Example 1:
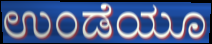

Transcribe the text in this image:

ಉಂಡೆಯೂ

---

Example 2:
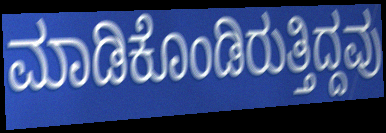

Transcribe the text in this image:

ಮಾಡಿಕೊಂಡಿರುತ್ತಿದ್ದವು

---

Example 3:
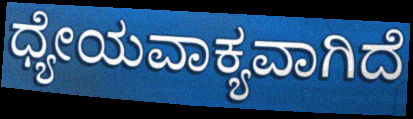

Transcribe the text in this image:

ಧ್ಯೇಯವಾಕ್ಯವಾಗಿದೆ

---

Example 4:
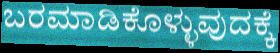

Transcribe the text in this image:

ಬರಮಾಡಿಕೊಳ್ಳುವುದಕ್ಕೆ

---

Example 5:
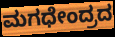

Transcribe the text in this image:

ಮಗಧೇಂದ್ರದ